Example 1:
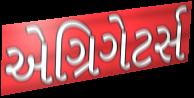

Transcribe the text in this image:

એગ્રિગેટર્સ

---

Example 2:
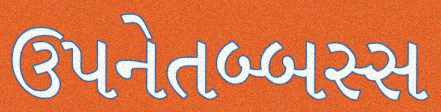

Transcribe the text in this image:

ઉપનેતબ્બસ્સ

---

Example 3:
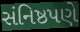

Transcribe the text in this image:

સંનિષ્ઠપણે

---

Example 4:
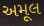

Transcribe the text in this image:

અમૂલ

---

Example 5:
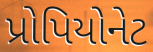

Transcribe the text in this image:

પ્રોપિયોનેટ